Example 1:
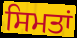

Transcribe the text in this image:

ਸਿਮਤਾਂ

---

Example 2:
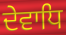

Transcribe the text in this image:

ਦੇਵਾਧਿ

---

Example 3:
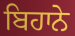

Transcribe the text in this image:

ਬਿਹਾਨੇ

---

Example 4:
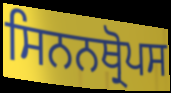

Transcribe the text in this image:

ਸਿਨਨਥ੍ਰੋਪਸ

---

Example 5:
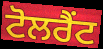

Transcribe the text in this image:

ਟੋਲਰੈਂਟ